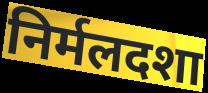
निर्मलदशा